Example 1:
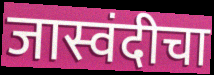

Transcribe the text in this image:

जास्वंदीचा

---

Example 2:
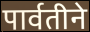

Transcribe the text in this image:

पार्वतीने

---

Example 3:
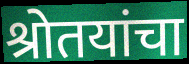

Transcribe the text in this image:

श्रोतयांचा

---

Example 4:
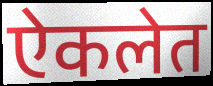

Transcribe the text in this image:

ऐकलेत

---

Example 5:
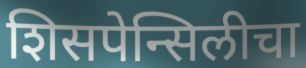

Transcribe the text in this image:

शिसपेन्सिलीचा